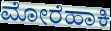
ಮೋರೆಹಾಕಿ